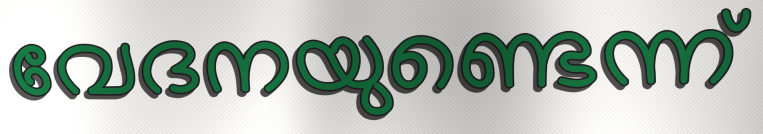
വേദനയുണ്ടെന്ന്